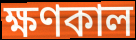
ক্ষণকাল